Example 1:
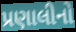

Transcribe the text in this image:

પ્રણાલીનો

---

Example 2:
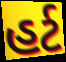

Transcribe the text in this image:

હર્ટ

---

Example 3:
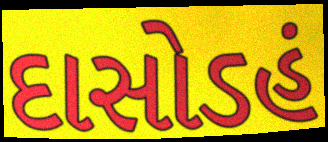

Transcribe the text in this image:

દાસોઽહં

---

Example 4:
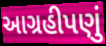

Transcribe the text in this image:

આગ્રહીપણું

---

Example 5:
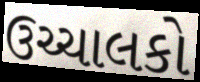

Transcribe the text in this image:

ઉચ્ચાલકો